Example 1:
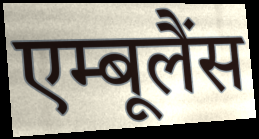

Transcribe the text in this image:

एम्बूलैंस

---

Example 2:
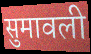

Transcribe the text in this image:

सुमावली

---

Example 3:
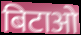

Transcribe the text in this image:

बिटाओ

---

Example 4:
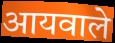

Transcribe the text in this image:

आयवाले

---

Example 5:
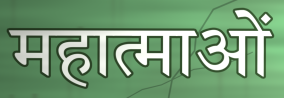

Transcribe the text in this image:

महात्‍माओं